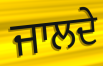
ਜਾਲਦੇ